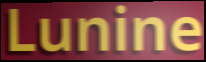
Lunine